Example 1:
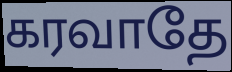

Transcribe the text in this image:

கரவாதே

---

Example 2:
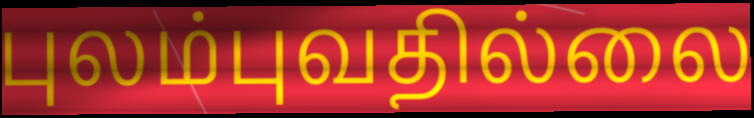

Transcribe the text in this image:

புலம்புவதில்லை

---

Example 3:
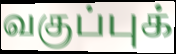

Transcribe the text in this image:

வகுப்புக்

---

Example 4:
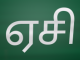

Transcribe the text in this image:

ஏசி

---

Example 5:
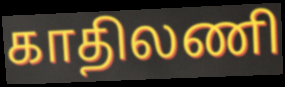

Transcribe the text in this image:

காதிலணி